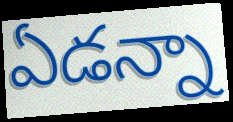
ఏడన్నా